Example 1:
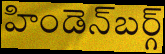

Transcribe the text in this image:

హిండెన్‌బర్గ్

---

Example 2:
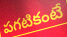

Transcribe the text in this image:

పగటికంటే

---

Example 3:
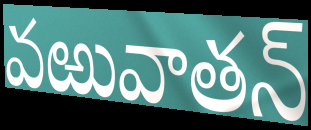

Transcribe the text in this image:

వఱువాతన్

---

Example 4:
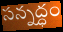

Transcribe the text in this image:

సన్నద్ధం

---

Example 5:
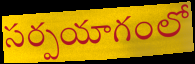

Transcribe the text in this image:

సర్పయాగంలో